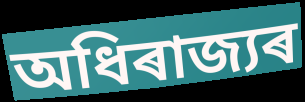
অধিৰাজ্যৰ